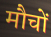
मौचों